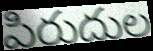
పిరుదుల